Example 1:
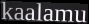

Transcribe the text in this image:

kaalamu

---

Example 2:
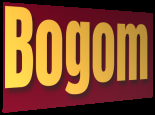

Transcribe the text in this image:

Bogom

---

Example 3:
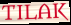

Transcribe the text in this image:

TILAK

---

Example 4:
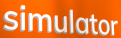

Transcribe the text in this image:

simulator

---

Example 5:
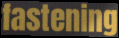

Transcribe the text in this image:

fastening